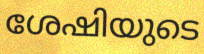
ശേഷിയുടെ